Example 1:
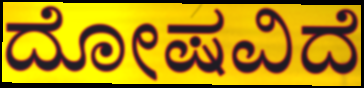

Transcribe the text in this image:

ದೋಷವಿದೆ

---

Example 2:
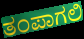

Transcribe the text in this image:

ತಂಪಾಗಲಿ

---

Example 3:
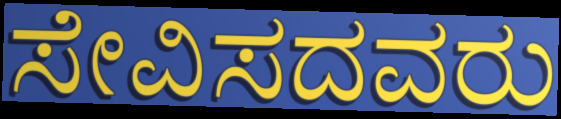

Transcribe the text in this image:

ಸೇವಿಸದವರು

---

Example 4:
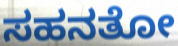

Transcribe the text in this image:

ಸಹನತೋ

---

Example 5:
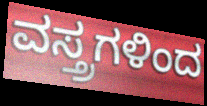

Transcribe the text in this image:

ವಸ್ತ್ರಗಳಿಂದ